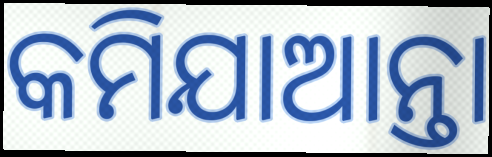
କମିଯାଆନ୍ତା